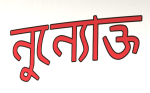
নুন্যোক্ত